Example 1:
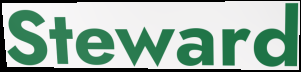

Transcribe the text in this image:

Steward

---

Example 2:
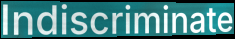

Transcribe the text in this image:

Indiscriminate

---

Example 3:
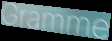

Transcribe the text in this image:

Gramme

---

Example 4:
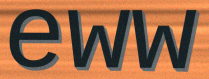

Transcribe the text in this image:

eww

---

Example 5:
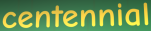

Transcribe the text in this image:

centennial